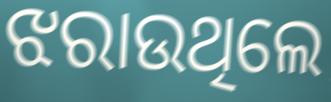
ଝରାଉଥିଲେ